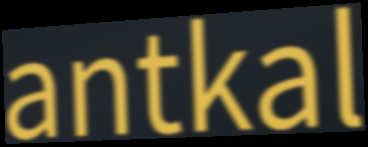
antkal